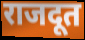
राजदूत